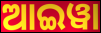
ଆଇୱା